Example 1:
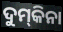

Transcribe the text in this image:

ଦୁମ୍‌କିନା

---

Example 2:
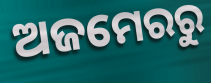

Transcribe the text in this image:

ଅଜମେରରୁ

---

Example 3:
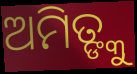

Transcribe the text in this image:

ଅମିତ୍ଙ୍କୁ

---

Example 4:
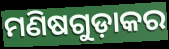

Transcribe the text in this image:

ମଣିଷଗୁଡ଼ାକର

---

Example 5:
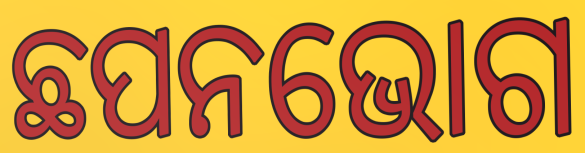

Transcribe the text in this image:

ଛପନଭୋଗ